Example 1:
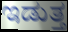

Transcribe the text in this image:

ಇಡುತ್ತ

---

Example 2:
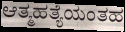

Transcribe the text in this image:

ಆತ್ಮಹತ್ಯೆಯಂತಹ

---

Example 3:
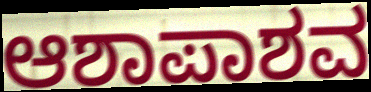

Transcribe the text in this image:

ಆಶಾಪಾಶವ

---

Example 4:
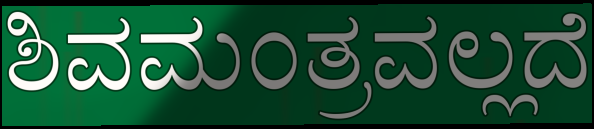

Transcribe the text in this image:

ಶಿವಮಂತ್ರವಲ್ಲದೆ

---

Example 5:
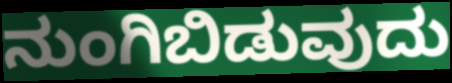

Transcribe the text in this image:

ನುಂಗಿಬಿಡುವುದು